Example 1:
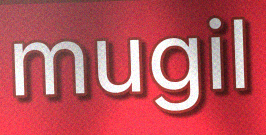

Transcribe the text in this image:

mugil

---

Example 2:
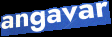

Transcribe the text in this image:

angavar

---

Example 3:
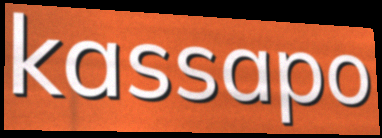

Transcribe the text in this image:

kassapo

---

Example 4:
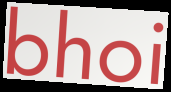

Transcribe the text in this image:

bhoi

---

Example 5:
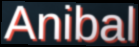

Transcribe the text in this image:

Anibal